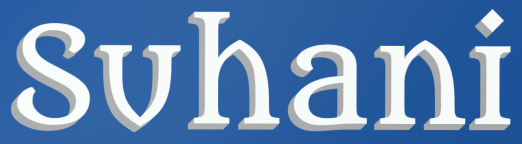
Suhani